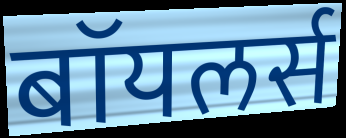
बॉयलर्स